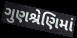
ગુણશ્રેણિમાં